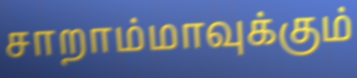
சாறாம்மாவுக்கும்